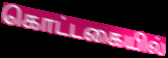
கொட்டகையில்